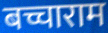
बच्चाराम